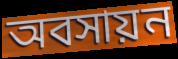
অবসায়ন